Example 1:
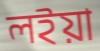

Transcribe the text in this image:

লইয়া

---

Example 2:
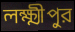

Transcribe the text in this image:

লক্ষ্মীপুর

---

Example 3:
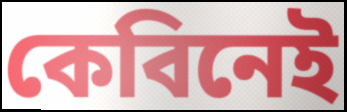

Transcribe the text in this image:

কেবিনেই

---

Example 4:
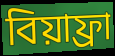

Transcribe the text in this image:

বিয়াফ্রা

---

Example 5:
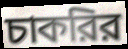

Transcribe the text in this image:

চাকরির